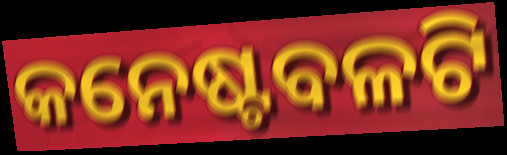
କନେଷ୍ଟବଳଟି